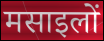
मसाइलों